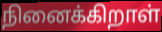
நினைக்கிறாள்